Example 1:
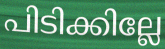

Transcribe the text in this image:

പിടിക്കില്ലേ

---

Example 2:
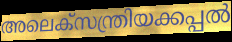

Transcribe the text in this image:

അലെക്സന്ത്രിയക്കപ്പൽ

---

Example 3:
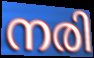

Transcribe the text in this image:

നരി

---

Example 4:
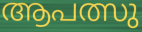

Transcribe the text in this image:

ആപത്സു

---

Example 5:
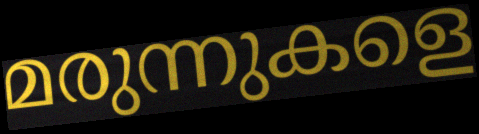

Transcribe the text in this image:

മരുന്നുകളെ